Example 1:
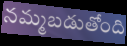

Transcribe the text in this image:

నమ్మబడుతోంది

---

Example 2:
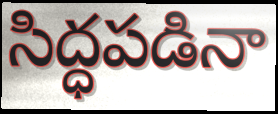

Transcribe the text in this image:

సిద్ధపడినా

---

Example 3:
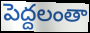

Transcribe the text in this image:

పెద్దలంతా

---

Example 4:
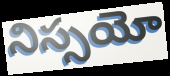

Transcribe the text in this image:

నిస్సయో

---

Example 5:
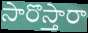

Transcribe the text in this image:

సారొస్తారా